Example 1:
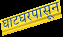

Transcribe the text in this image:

घाटघरपासून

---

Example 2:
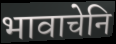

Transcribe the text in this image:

भावाचेनि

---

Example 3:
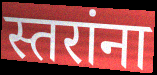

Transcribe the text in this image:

स्तरांना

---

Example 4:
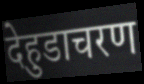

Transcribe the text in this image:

देहुडाचरण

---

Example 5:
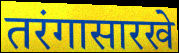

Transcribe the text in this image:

तरंगासारखे